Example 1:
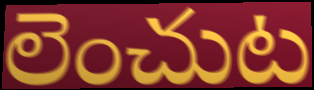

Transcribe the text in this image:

లెంచుట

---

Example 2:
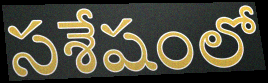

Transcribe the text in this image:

సశేషంలో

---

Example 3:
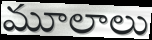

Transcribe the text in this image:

మూలాలు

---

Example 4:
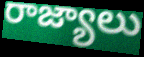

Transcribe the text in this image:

రాజ్యాలు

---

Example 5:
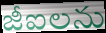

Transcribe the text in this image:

జీఐలను